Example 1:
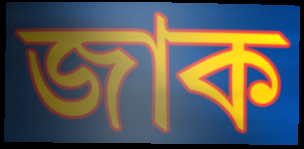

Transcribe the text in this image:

জাক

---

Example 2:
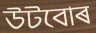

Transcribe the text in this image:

উটবোৰ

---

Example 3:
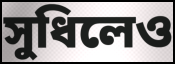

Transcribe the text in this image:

সুধিলেও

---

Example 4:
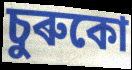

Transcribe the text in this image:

চুৰুকো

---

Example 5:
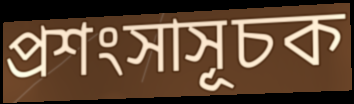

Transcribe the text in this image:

প্ৰশংসাসূচক